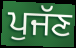
ਪੁਜੱਣ